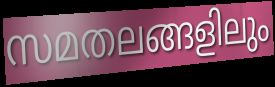
സമതലങ്ങളിലും